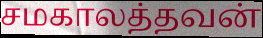
சமகாலத்தவன்